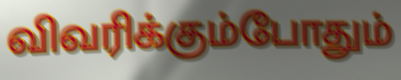
விவரிக்கும்போதும்